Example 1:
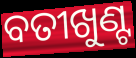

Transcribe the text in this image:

ବତୀଖୁଣ୍ଟ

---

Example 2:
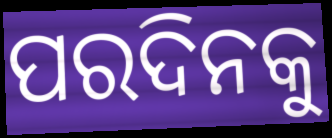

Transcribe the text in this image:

ପରଦିନକୁ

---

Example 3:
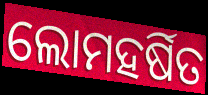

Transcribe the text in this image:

ଲୋମହର୍ଷିତ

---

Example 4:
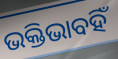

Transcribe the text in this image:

ଭକ୍ତିଭାବହିଁ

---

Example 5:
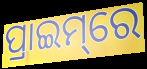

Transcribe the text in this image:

ପ୍ରାଇମ୍‌ରେ